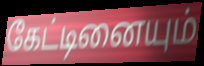
கேட்டினையும்